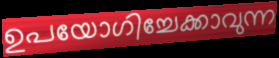
ഉപയോഗിച്ചേക്കാവുന്ന